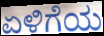
ಏಳಿಗೆಯ